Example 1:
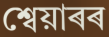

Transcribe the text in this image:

শ্বেয়াৰৰ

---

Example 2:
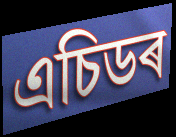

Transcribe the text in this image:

এচিডৰ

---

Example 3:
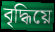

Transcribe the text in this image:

বৃদ্ধিয়ে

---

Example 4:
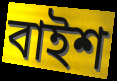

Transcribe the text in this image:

বাইশ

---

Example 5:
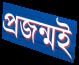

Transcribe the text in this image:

প্ৰজন্মই